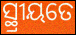
ସ୍ଥ୍ରୀୟତେ